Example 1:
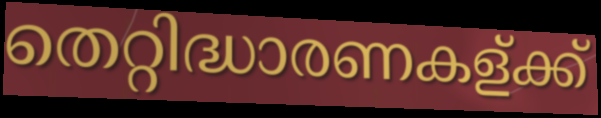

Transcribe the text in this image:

തെറ്റിദ്ധാരണകള്ക്ക്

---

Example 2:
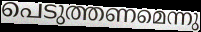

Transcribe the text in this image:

പെടുത്തണമെന്നു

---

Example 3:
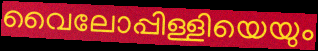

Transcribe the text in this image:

വൈലോപ്പിള്ളിയെയും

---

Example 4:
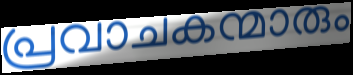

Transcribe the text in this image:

പ്രവാചകന്മാരും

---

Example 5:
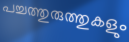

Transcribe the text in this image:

പച്ചത്തുരുത്തുകളും